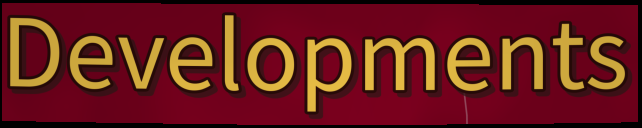
Developments